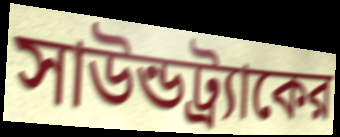
সাউন্ডট্র্যাকের